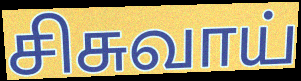
சிசுவாய்